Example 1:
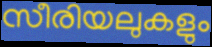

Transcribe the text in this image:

സീരിയലുകളും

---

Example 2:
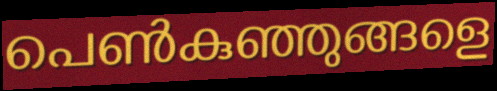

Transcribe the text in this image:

പെൺകുഞ്ഞുങ്ങളെ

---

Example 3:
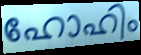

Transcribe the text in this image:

ഹോഹിം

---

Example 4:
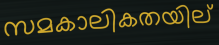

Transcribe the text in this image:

സമകാലികതയില്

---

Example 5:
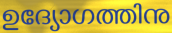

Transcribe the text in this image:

ഉദ്യോഗത്തിനു